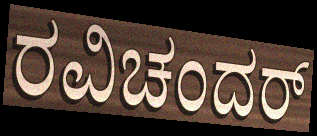
ರವಿಚಂದರ್